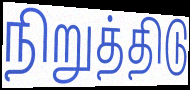
நிறுத்திடு